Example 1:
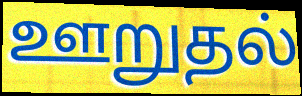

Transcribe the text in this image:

ஊறுதல்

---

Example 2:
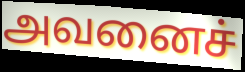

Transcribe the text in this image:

அவனைச்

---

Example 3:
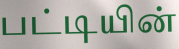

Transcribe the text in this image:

பட்டியின்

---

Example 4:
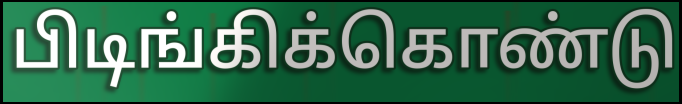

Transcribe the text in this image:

பிடிங்கிக்கொண்டு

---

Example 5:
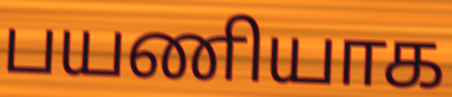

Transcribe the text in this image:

பயணியாக